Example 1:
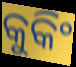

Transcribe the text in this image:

କୁକିଂ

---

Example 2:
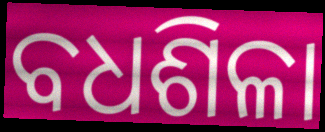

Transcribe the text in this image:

ବଧଶିଳା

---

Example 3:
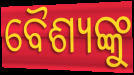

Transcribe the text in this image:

ବୈଶ୍ୟଙ୍କୁ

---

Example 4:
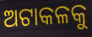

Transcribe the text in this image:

ଅଟାକଳକୁ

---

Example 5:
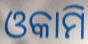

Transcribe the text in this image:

ଓକାମି